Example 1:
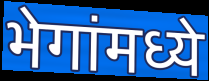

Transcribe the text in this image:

भेगांमध्ये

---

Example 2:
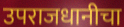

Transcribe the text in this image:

उपराजधानीचा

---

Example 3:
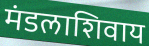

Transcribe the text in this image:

मंडलाशिवाय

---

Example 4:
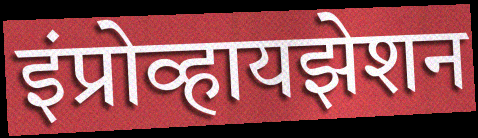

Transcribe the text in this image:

इंप्रोव्हायझेशन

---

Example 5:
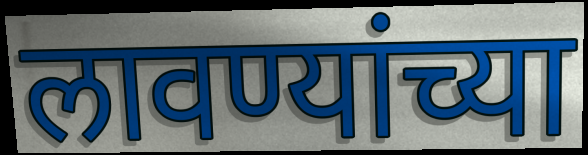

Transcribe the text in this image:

लावण्यांच्या